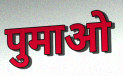
पुमाओ